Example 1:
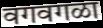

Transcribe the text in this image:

वगवगळा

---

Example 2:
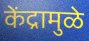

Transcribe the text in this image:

केंद्रामुळे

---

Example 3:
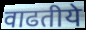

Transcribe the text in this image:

वाढतीये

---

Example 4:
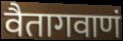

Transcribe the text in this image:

वैतागवाणं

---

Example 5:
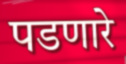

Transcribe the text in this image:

पडणारे